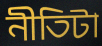
নীতিটা